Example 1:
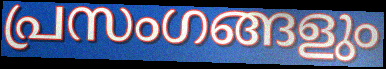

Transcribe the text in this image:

പ്രസംഗങ്ങളും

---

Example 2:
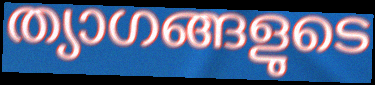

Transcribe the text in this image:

ത്യാഗങ്ങളുടെ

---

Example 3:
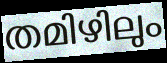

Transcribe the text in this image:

തമിഴിലും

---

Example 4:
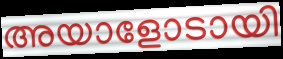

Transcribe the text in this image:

അയാളോടായി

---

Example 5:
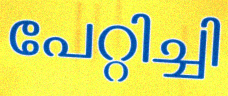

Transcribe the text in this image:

പേറ്റിച്ചി